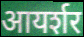
आयर्शर